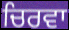
ਚਿਰਵਾ